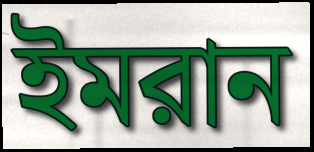
ইমরান